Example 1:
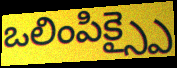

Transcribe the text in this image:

ఒలింపిక్స్పై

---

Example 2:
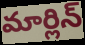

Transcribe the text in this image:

మార్లిన్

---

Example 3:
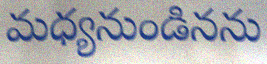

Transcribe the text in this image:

మధ్యనుండినను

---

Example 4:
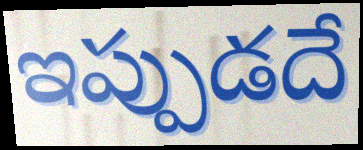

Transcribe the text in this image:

ఇప్పుడదే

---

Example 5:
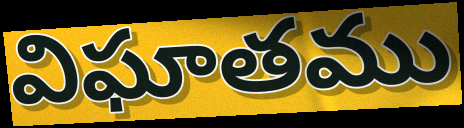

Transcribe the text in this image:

విఘాతము